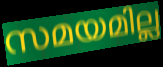
സമയമില്ല